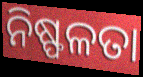
ନିଷ୍ଫଳତା